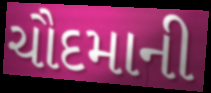
ચૌદમાની